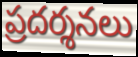
ప్రదర్శనలు